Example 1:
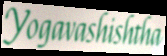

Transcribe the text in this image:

Yogavashishtha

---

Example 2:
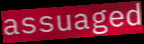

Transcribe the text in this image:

assuaged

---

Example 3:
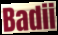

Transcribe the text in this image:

Badii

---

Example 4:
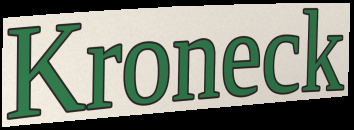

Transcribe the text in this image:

Kroneck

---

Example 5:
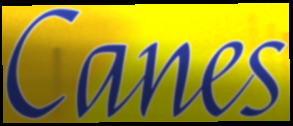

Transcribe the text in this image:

Canes